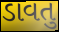
ડાવતુ